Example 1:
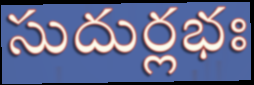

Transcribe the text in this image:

సుదుర్లభః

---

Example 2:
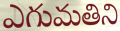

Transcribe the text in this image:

ఎగుమతిని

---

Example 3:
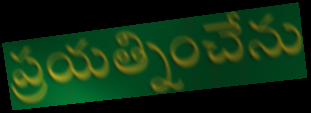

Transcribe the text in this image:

ప్రయత్నించేను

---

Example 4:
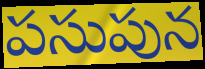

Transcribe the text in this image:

పసుపున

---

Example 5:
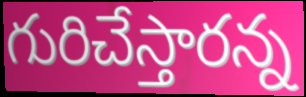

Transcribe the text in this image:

గురిచేస్తారన్న